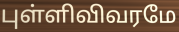
புள்ளிவிவரமே